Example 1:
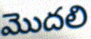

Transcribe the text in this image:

మొదలి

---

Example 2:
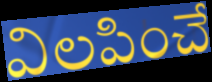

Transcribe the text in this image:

విలపించే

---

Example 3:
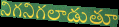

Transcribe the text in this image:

నిగనిగలాడుతూ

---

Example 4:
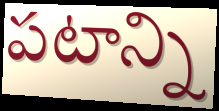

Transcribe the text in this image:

పటాన్ని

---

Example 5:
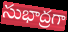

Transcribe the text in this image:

సుభాద్రగా